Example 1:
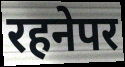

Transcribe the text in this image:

रहनेपर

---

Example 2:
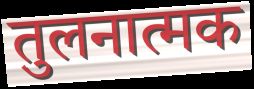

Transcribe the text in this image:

तुलनात्मक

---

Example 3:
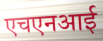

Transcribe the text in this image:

एचएनआई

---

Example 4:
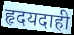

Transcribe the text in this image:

हृदयदाही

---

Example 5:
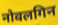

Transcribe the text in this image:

नोवलगिन